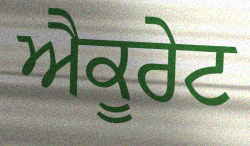
ਐਕੂਰੇਟ